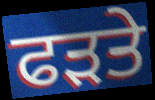
ਫੜਤੇ